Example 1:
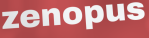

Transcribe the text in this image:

zenopus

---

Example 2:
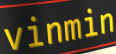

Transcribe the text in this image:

vinmin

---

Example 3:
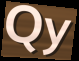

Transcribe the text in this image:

Qy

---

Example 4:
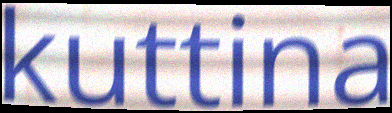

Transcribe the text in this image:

kuttina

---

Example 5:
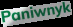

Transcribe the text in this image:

Paniwnyk